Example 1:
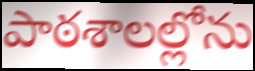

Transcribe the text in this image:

పాఠశాలల్లోను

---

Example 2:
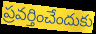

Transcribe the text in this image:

ప్రవర్తించేందుకు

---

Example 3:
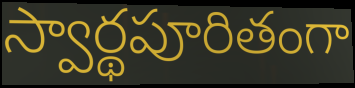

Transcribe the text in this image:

స్వార్థపూరితంగా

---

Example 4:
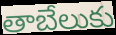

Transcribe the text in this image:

తాబేలుకు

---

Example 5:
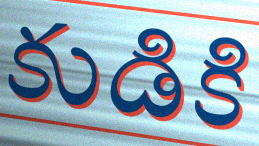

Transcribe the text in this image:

కుడికి